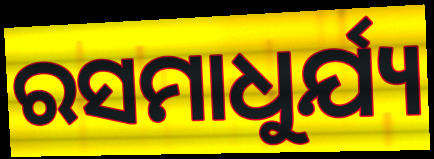
ରସମାଧୁର୍ଯ୍ୟ